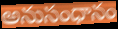
అనుసంధానం